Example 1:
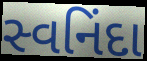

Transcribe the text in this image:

સ્વનિંદા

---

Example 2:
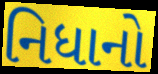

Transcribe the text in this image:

નિધાનો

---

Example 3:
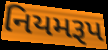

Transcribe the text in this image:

નિયમરૂપ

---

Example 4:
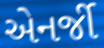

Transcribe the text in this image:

એનર્જી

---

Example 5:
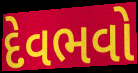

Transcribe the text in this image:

દેવભવો